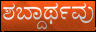
ಶಬ್ದಾರ್ಥವು